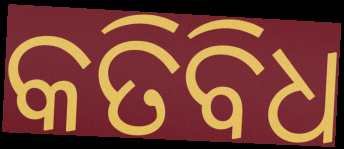
କତିବିଧ